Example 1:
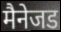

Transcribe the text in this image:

मैनेजड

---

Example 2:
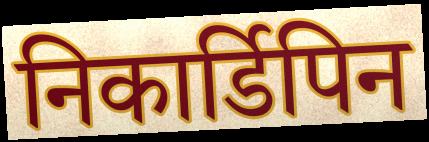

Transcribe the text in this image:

निकार्डिपिन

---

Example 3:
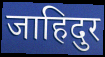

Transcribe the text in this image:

जाहिदुर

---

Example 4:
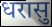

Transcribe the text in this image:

धरासु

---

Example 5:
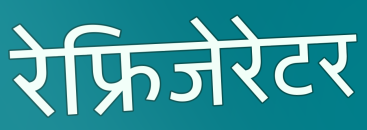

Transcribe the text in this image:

रेफ्रिजेरेटर